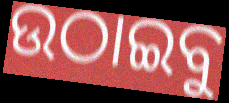
ଉଠାଇବୁ